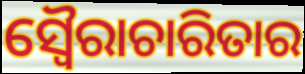
ସ୍ୱୈରାଚାରିତାର